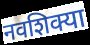
नवशिक्या